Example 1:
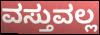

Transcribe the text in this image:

ವಸ್ತುವಲ್ಲ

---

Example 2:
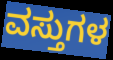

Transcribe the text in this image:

ವಸ್ತುಗಳ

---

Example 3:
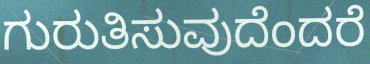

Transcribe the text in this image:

ಗುರುತಿಸುವುದೆಂದರೆ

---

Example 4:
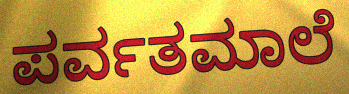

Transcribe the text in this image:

ಪರ್ವತಮಾಲೆ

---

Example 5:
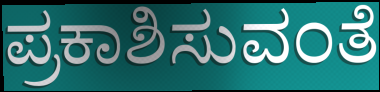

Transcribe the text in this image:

ಪ್ರಕಾಶಿಸುವಂತೆ